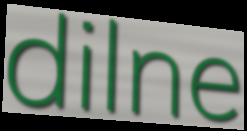
dilne